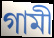
গামী